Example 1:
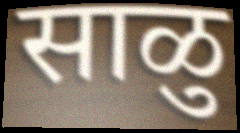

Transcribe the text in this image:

साळु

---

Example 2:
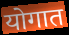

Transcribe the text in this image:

योगात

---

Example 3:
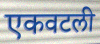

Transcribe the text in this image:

एकवटली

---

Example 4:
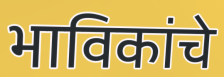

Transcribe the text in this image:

भाविकांचे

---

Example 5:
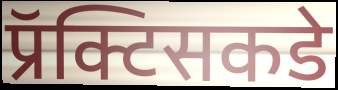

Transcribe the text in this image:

प्रॅक्टिसकडे